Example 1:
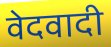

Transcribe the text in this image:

वेदवादी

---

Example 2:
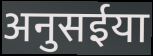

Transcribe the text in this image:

अनुसईया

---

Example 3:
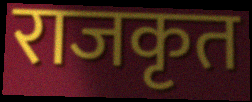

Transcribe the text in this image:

राजकृत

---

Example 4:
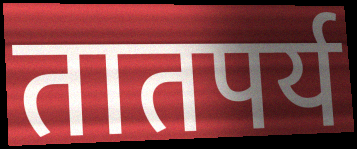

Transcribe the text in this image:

तातपर्य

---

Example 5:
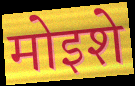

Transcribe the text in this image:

मोइशे